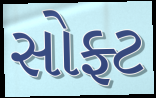
સોફ્ટ